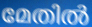
മേതിൽ